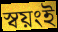
স্বয়ংই